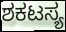
ಶಕಟಸ್ಯ